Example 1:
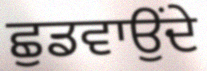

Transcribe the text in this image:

ਛੁਡਵਾਉਂਦੇ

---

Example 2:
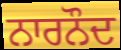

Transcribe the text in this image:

ਨਾਰਨੌਦ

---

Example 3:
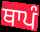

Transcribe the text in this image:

ਥਾਪੰ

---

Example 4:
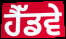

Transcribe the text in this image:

ਹੈੱਡਵੇ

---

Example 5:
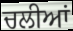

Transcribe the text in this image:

ਚਲੀਆਂ